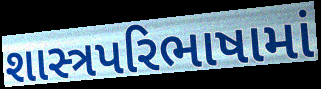
શાસ્ત્રપરિભાષામાં